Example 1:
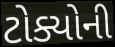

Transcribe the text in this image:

ટોક્યોની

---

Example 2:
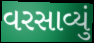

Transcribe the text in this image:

વરસાવ્યું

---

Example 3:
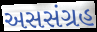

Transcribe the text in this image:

અસસંગ્રહ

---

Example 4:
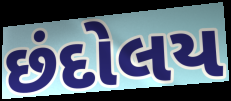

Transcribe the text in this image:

છંદોલય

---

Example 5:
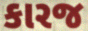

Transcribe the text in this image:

કારજ